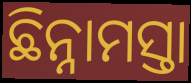
ଛିନ୍ନାମସ୍ତା